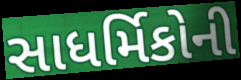
સાધર્મિકોની